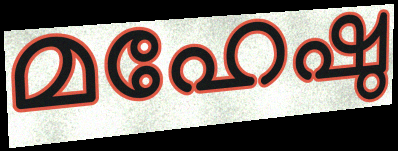
മഹേഷു